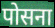
पोसना